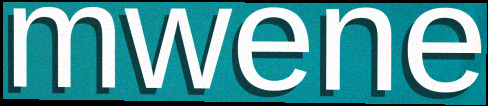
mwene